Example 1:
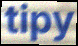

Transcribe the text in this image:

tipy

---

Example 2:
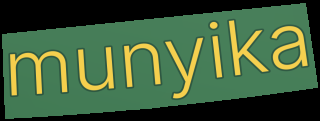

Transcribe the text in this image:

munyika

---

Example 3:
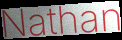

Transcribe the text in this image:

Nathan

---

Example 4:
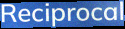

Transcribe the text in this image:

Reciprocal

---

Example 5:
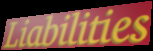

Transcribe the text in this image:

Liabilities